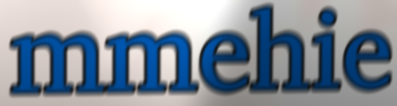
mmehie